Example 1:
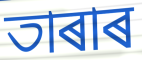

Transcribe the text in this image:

তাৰাৰ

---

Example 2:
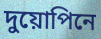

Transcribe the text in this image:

দুয়োপিনে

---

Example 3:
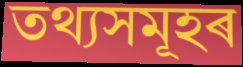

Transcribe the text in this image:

তথ্যসমূহৰ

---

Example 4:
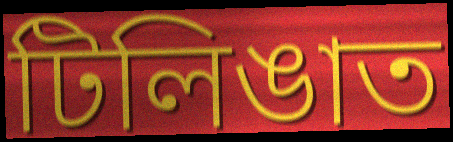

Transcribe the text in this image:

টিলিঙাত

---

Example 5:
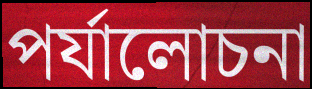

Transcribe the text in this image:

পৰ্যালোচনা